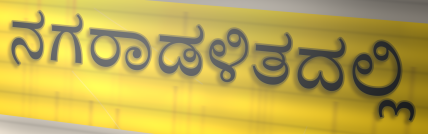
ನಗರಾಡಳಿತದಲ್ಲಿ